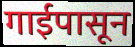
गाईपासून